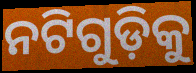
ନଟିଗୁଡ଼ିକୁ